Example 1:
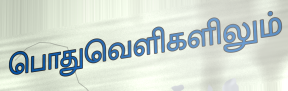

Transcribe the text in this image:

பொதுவெளிகளிலும்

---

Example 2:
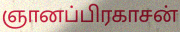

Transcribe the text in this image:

ஞானப்பிரகாசன்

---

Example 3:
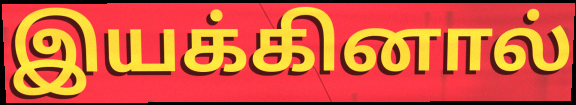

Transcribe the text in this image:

இயக்கினால்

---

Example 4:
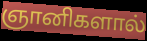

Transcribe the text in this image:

ஞானிகளால்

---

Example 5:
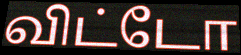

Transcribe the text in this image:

விட்டோ